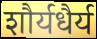
शौर्यधैर्य